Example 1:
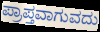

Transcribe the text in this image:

ಪ್ರಾಪ್ತವಾಗುವದು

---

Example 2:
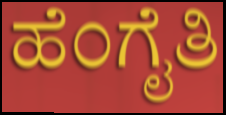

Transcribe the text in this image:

ಹೆಂಗೈತಿ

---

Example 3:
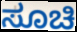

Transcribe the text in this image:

ಸೂಚಿ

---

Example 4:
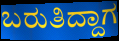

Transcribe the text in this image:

ಬರುತಿದ್ದಾಗ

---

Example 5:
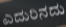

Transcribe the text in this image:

ಎದುರಿನದು